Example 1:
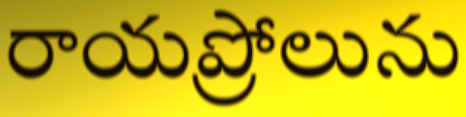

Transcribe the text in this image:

రాయప్రోలును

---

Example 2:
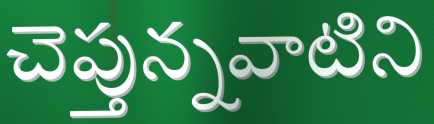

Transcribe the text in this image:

చెప్తున్నవాటిని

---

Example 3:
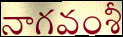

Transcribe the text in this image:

నాగవంశీ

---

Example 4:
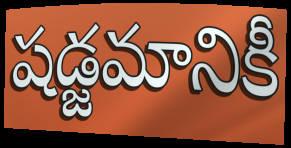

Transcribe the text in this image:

షడ్జమానికీ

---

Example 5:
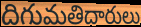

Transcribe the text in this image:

దిగుమతిదారులు